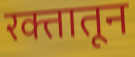
रक्तातून